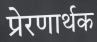
प्रेरणार्थक